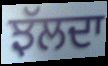
ਝੱਲਦਾ